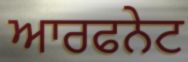
ਆਰਫਨੇਟ